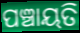
ପଞ୍ଚାୟତି